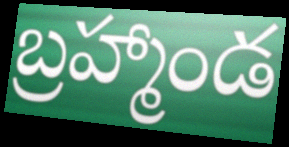
బ్రహ్మాండ